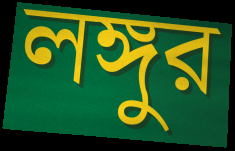
লঙ্গুর